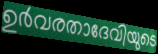
ഉർവരതാദേവിയുടെ